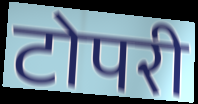
टोपरी